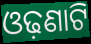
ଓଢ଼ଣାଟି